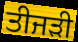
ਤੀਜੜੀ